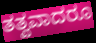
ತತ್ವವಾದರೂ